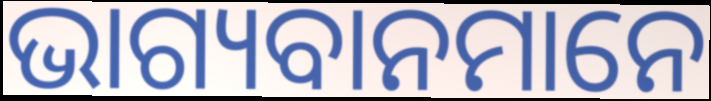
ଭାଗ୍ୟବାନମାନେ